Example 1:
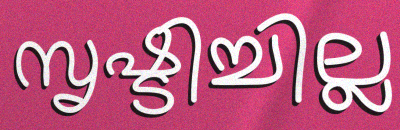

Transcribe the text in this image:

സൃഷ്ടിച്ചില്ല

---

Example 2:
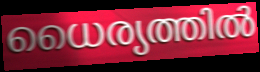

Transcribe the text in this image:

ധൈര്യത്തിൽ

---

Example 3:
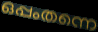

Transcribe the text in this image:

ഒപ്പംതന്നെ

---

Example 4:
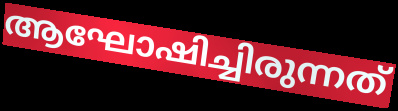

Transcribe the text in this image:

ആഘോഷിച്ചിരുന്നത്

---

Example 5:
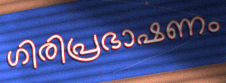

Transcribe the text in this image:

ഗിരിപ്രഭാഷണം